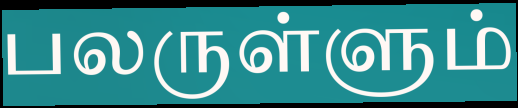
பலருள்ளும்